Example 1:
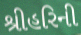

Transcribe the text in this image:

શ્રીહરિની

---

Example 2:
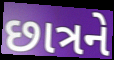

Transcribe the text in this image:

છાત્રને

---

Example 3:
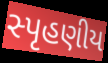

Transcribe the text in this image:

સ્પૃહણીય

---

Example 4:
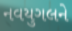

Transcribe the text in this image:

નવયુગલને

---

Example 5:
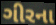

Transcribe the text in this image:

ગીરના